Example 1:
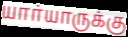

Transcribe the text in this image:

யார்யாருக்கு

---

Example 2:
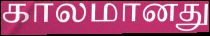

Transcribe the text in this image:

காலமானது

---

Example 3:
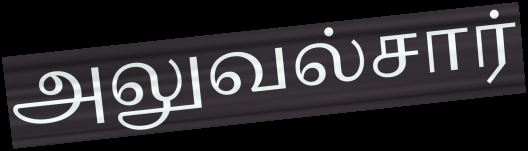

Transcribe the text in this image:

அலுவல்சார்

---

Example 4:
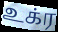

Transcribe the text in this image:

உக்ர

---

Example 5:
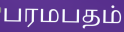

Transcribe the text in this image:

பரமபதம்